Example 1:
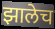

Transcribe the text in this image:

झालेच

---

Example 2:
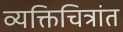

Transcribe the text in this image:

व्यक्तिचित्रांत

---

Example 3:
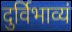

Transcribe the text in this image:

दुर्विभाव्यं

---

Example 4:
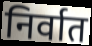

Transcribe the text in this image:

निर्वात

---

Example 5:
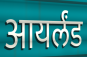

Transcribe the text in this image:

आयर्लंड